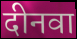
दीनवा